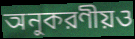
অনুকরণীয়ও